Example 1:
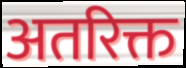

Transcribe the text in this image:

अतरिक्त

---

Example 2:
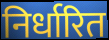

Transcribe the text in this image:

निर्धारित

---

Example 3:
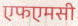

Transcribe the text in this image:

एफएमसी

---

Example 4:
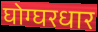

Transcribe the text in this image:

घोग्घरधार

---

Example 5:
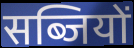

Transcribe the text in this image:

सब्जियों